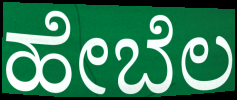
ಹೇಬೆಲ